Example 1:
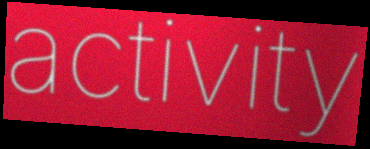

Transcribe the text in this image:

activity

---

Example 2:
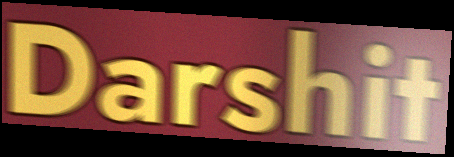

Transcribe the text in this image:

Darshit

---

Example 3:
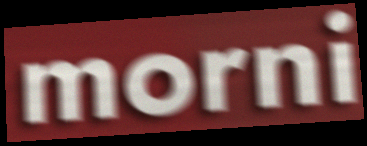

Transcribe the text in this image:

morni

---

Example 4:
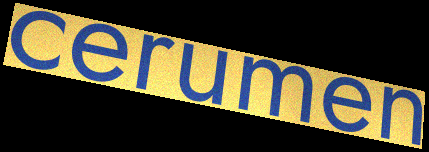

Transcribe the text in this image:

cerumen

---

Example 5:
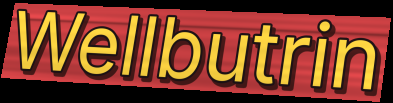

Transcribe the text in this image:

Wellbutrin